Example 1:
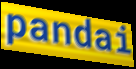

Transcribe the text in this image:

pandai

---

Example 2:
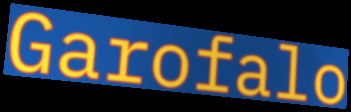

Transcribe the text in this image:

Garofalo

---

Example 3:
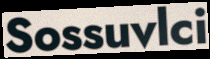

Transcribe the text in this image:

Sossuvlci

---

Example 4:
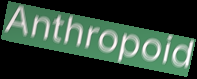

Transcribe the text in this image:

Anthropoid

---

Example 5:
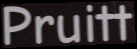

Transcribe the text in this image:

Pruitt